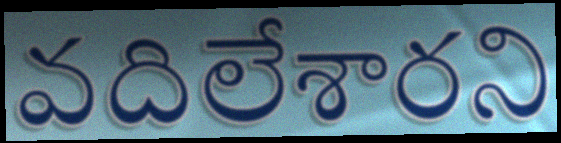
వదిలేశారని